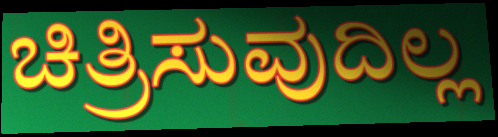
ಚಿತ್ರಿಸುವುದಿಲ್ಲ